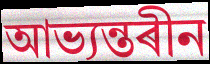
আভ্যন্তৰীন